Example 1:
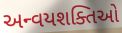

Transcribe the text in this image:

અન્વયશક્તિઓ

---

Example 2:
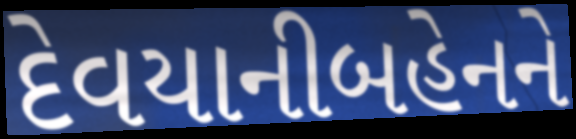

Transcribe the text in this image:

દેવયાનીબહેનને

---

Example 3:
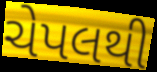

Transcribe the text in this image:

ચેપલથી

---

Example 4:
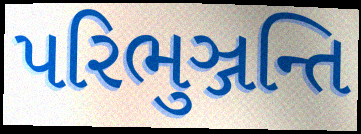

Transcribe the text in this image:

પરિભુઞ્જન્તિ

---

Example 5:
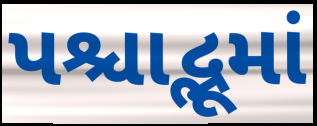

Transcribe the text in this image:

પશ્ચાદ્ભૂમાં